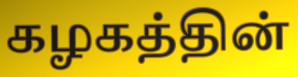
கழகத்தின்